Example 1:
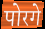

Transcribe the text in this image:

पोरगे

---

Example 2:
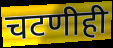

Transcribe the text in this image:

चटणीही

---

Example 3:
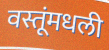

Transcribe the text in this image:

वस्तूंमधली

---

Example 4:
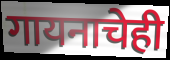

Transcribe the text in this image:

गायनाचेही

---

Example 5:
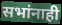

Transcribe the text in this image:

सभांनाही